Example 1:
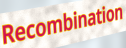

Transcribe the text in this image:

Recombination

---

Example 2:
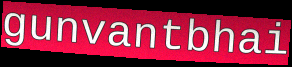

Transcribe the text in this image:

gunvantbhai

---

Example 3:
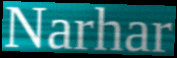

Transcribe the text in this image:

Narhar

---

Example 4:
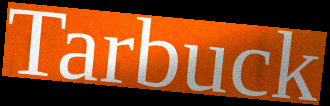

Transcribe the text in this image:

Tarbuck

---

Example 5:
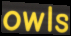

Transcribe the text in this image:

owls